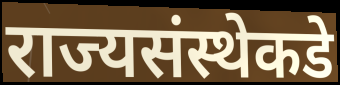
राज्यसंस्थेकडे